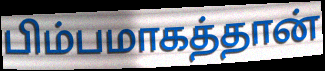
பிம்பமாகத்தான்